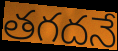
తగదనే